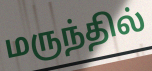
மருந்தில்